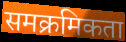
समक्रमिकता